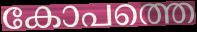
കോപത്തെ